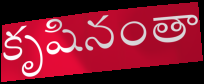
కృషినంతా